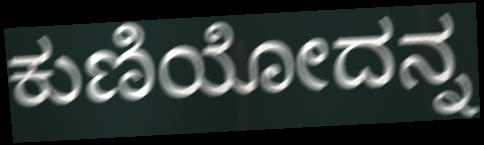
ಕುಣಿಯೋದನ್ನ